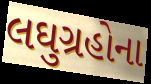
લઘુગ્રહોના